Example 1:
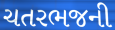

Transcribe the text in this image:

ચતરભજની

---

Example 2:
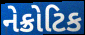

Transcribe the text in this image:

નેક્રોટિક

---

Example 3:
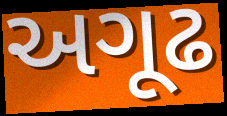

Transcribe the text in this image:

અગૂઢ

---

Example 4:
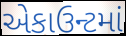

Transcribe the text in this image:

એકાઉન્ટમાં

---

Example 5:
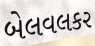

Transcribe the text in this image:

બેલવલકર